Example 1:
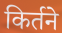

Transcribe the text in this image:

किर्तने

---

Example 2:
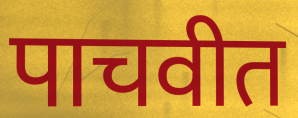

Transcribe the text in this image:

पाचवीत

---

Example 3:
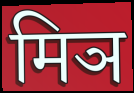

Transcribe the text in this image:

मिञ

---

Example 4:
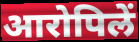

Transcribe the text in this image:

आरोपिलें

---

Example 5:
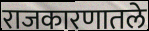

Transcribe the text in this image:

राजकारणातले